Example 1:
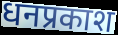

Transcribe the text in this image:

धनप्रकाश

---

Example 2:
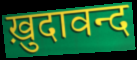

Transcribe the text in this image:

ख़ुदावन्द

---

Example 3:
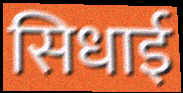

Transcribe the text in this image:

सिधाई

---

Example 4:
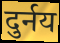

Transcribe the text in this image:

दुर्नय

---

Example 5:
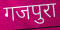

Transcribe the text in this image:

गजपुरा